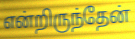
என்றிருந்தேன்